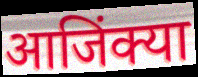
आजिंक्या